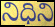
నిధిని